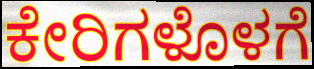
ಕೇರಿಗಳೊಳಗೆ